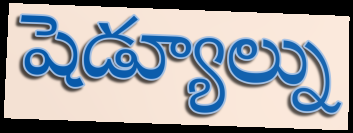
షెడ్యూల్ను